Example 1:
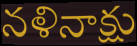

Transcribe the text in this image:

నళినాక్షు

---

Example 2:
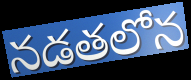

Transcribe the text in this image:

నడతలోన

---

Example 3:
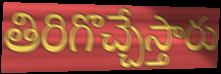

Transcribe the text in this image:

తిరిగొచ్చేస్తారు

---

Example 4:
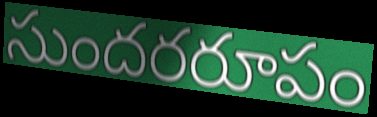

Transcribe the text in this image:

సుందరరూపం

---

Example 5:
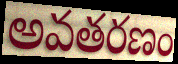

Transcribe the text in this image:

అవతరణం